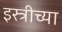
इस्त्रीच्या